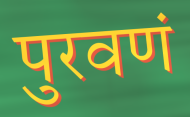
पुरवणं